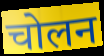
चोलन